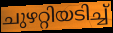
ചുഴറ്റിയടിച്ച്